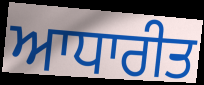
ਆਧਾਰੀਤ